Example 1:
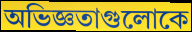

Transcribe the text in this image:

অভিজ্ঞতাগুলোকে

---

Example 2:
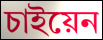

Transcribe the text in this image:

চাইয়েন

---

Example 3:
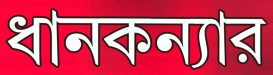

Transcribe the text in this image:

ধানকন্যার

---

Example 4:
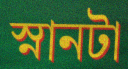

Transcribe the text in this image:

স্নানটা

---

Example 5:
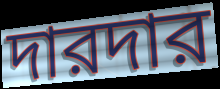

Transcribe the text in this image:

দারদার